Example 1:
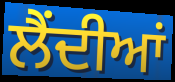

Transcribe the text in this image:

ਲੈਂਦੀਆਂ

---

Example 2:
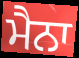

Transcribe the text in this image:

ਮੈਨਾ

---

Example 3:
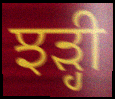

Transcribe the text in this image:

ਝੜ੍ਹੀ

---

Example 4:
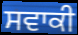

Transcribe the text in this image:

ਸਵਾਕੀ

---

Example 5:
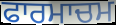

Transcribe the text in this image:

ਫਾਰਮਾਚਮ